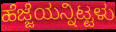
ಹೆಜ್ಜೆಯನ್ನಿಟ್ಟಳು